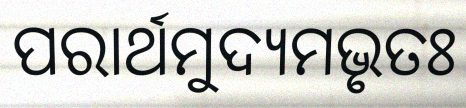
ପରାର୍ଥମୁଦ୍ୟମଭୃତଃ